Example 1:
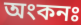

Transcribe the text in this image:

অংকনঃ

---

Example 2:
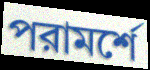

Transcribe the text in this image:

পরামর্শে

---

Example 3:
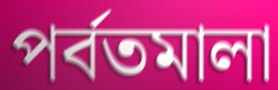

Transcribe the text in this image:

পর্বতমালা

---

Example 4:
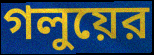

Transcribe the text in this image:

গলুয়ের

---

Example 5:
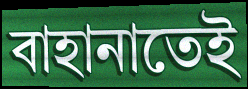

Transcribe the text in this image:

বাহানাতেই